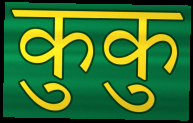
कुकु